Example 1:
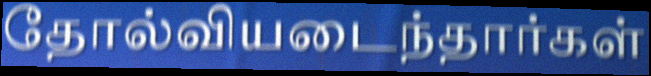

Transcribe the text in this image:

தோல்வியடைந்தார்கள்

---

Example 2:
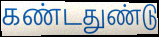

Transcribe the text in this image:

கண்டதுண்டு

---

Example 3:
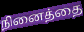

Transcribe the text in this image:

நினைத்தை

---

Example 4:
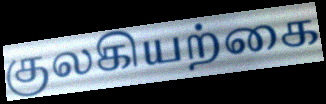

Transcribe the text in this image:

குலகியற்கை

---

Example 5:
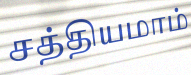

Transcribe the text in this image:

சத்தியமாம்